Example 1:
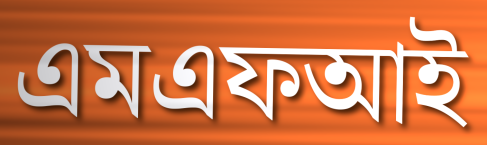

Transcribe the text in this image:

এমএফআই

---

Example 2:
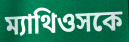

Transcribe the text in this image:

ম্যাথিওসকে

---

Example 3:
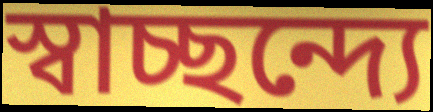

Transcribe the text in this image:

স্বাচ্ছন্দ্যে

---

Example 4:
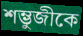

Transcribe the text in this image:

শম্ভুজীকে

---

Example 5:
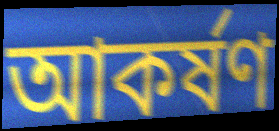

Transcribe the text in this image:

আকর্ষণ